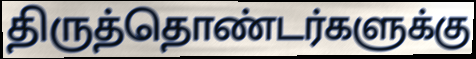
திருத்தொண்டர்களுக்கு